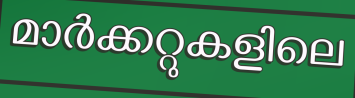
മാർക്കറ്റുകളിലെ